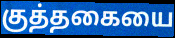
குத்தகையை